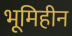
भूमिहीन